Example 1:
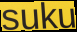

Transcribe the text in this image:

suku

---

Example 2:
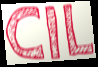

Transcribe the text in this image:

CIL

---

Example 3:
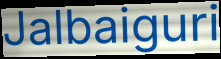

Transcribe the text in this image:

Jalbaiguri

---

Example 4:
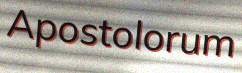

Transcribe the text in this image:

Apostolorum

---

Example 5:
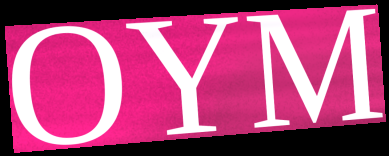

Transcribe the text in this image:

OYM